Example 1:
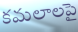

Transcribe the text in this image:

కమలాలపై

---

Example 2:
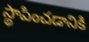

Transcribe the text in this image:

స్థాపించడానికి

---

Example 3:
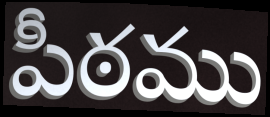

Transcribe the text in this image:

పీఠము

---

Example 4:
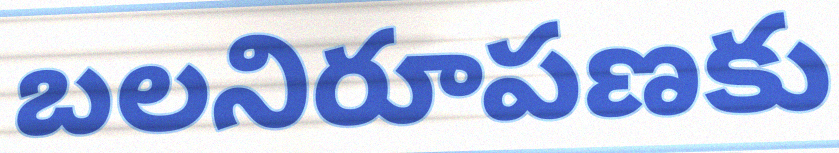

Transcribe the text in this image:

బలనిరూపణకు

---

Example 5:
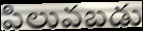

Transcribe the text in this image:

పిలువబడు